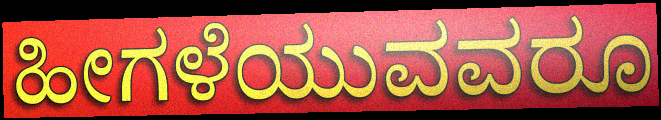
ಹೀಗಳೆಯುವವರೂ